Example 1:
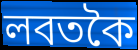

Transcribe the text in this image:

লবতকৈ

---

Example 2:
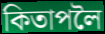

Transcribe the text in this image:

কিতাপলৈ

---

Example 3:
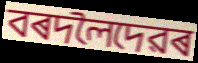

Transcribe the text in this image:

বৰদলৈদেৱৰ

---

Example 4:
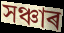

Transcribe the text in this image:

সঞ্চাৰ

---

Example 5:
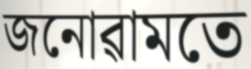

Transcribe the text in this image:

জনোৱামতে